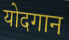
योदगान